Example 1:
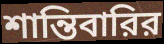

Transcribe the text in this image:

শান্তিবারির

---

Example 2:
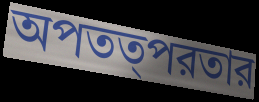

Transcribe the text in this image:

অপতত্পরতার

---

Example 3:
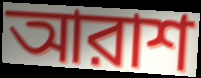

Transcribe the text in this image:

আরাশ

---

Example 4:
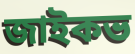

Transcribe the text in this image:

জাইকভ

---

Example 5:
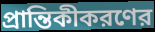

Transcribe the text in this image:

প্রান্তিকীকরণের